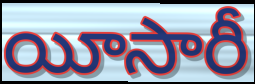
యీసారీ